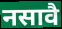
नसावै